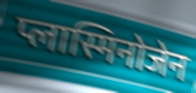
प्लास्मिनोजेन